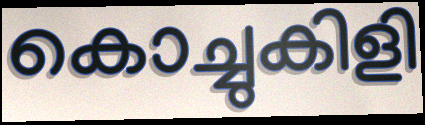
കൊച്ചുകിളി